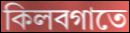
কিলবগাতে